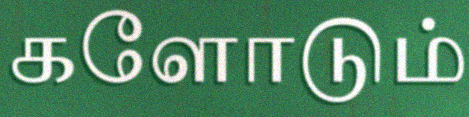
களோடும்